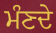
ਮੰਣਦੇ